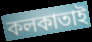
কলকাতাই